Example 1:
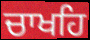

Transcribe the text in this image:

ਚਾਖਹਿ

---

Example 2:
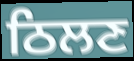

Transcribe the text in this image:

ਠਿਲਣ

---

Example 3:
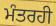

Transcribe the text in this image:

ਮੰਤਰਹੀ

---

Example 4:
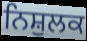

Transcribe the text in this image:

ਨਿਸ਼ੁਲਕ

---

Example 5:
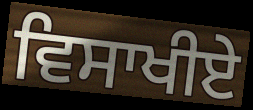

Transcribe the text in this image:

ਵਿਸਾਖੀਏੇ